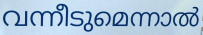
വന്നീടുമെന്നാൽ